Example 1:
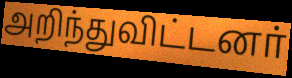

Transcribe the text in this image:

அறிந்துவிட்டனர்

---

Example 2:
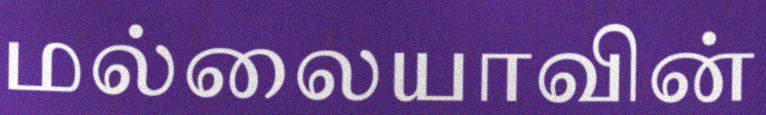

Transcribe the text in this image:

மல்லையாவின்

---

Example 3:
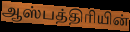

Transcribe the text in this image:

ஆஸ்பத்திரியின்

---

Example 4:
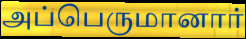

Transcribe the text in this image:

அப்பெருமானார்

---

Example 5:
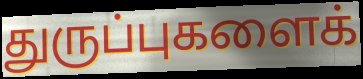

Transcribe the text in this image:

துருப்புகளைக்